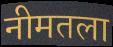
नीमतला